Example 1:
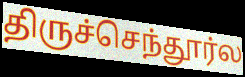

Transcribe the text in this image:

திருச்செந்தூர்ல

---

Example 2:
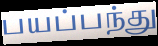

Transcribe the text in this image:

பயப்பந்து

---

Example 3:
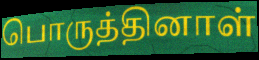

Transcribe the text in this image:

பொருத்தினாள்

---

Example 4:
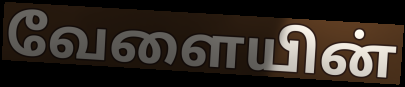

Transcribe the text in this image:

வேளையின்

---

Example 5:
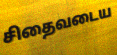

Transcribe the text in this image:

சிதைவடைய